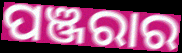
ପଞ୍ଜରାର